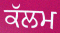
ਕੱਲਮ